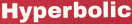
Hyperbolic